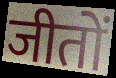
जीतों